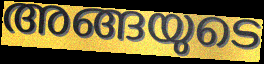
അങ്ങയുടെ